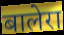
बालेरा